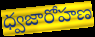
ధ్వజారోహణ